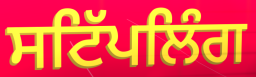
ਸਟਿੱਪਲਿੰਗ